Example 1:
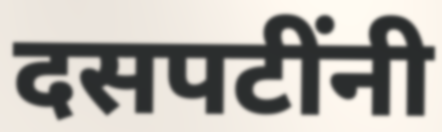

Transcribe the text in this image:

दसपटींनी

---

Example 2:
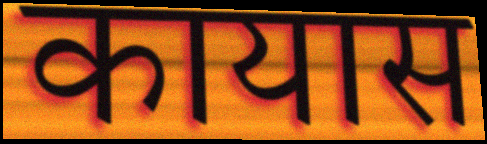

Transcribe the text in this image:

कायास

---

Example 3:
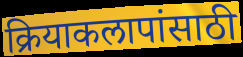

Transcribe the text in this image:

क्रियाकलापांसाठी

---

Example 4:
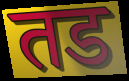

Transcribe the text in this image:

तड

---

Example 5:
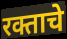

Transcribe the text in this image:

रक्ताचे